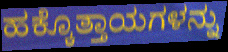
ಹಕ್ಕೊತ್ತಾಯಗಳನ್ನು